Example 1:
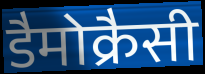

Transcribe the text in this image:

डैमोक्रैसी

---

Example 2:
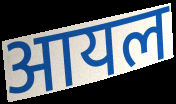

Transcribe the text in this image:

आयल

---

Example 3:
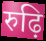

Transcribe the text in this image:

रुढ़ि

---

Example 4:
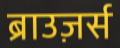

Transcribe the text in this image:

ब्राउज़र्स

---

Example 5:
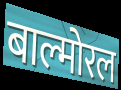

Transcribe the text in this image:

बाल्‍मोरल